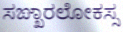
ಸಙ್ಖಾರಲೋಕಸ್ಸ